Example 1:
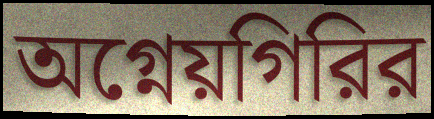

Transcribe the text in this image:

অগ্নেয়গিরির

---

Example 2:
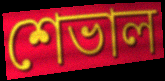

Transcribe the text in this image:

শেভাল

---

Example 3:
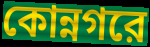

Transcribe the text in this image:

কোন্নগরে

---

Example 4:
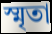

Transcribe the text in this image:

স্মৃতা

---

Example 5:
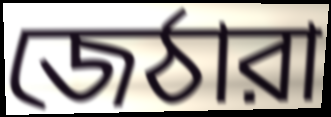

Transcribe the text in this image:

জেঠারা